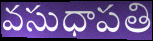
వసుధాపతి